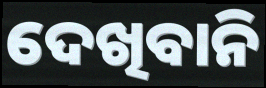
ଦେଖିବାନି